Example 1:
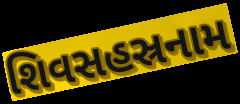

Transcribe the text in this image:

શિવસહસ્રનામ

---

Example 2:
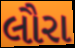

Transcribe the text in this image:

લૌરા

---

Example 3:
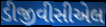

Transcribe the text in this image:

ડીજીવીસીએલ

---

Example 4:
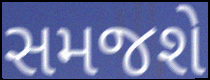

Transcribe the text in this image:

સમજશે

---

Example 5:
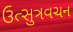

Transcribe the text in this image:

ઉત્સુત્રવચન